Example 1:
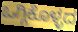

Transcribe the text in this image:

ಒಗ್ಗಿಕೊಳ್ಳದ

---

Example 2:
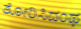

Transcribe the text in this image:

ತೋರಿಸಿದಂಥ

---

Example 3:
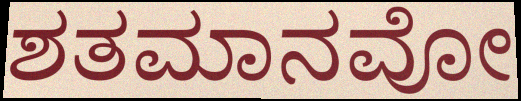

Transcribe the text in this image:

ಶತಮಾನವೋ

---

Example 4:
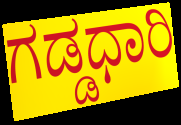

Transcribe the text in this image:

ಗಡ್ಡಧಾರಿ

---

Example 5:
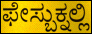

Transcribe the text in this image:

ಫೇಸ್ಬುಕ್ನಲ್ಲಿ